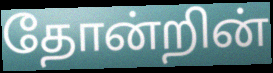
தோன்றின்